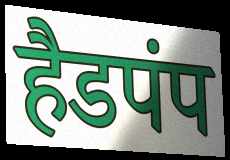
हैडपंप